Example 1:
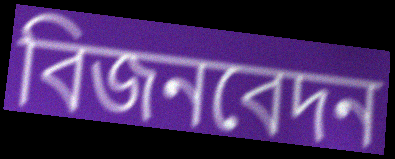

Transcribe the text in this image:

বিজনবেদন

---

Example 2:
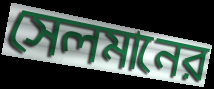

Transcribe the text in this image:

সেলমানের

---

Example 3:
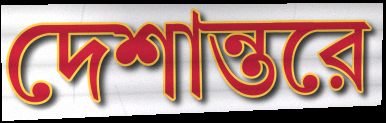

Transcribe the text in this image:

দেশান্তরে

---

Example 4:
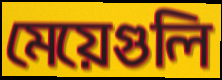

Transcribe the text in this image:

মেয়েগুলি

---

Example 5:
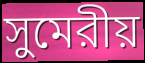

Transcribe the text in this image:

সুমেরীয়